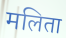
मलिता